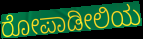
ರೋಪಾಡೀಲಿಯ